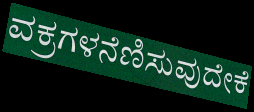
ವಕ್ರಗಳನೆಣಿಸುವುದೇಕೆ